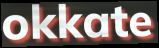
okkate